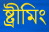
ষ্ট্ৰীমিং